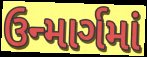
ઉન્માર્ગમાં